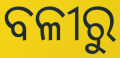
ବଳୀରୁ